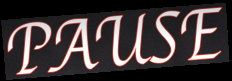
PAUSE